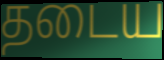
தடைய